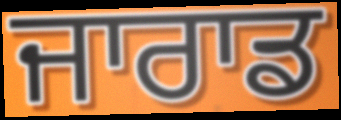
ਜਾਰਾਡ